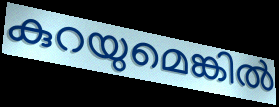
കുറയുമെങ്കിൽ